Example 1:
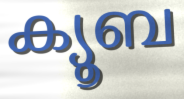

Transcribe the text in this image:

ക്യൂബ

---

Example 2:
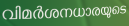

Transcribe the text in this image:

വിമർശനധാരയുടെ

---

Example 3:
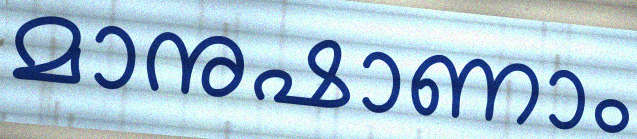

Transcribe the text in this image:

മാനുഷാണാം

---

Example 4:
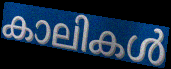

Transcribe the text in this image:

കാലികൾ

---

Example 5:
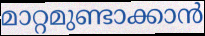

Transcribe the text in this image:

മാറ്റമുണ്ടാക്കാൻ